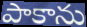
పాకాను